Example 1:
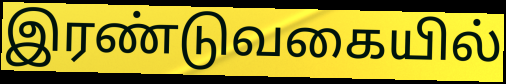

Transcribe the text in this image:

இரண்டுவகையில்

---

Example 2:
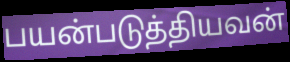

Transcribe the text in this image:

பயன்படுத்தியவன்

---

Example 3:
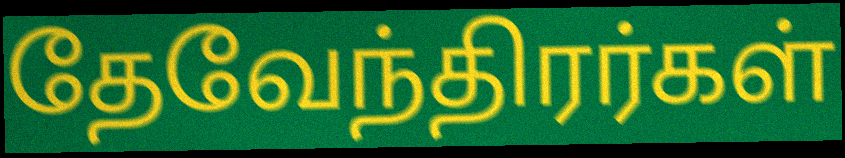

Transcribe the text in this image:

தேவேந்திரர்கள்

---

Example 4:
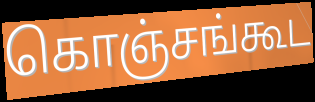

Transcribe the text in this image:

கொஞ்சங்கூட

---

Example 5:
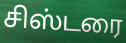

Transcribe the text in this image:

சிஸ்டரை